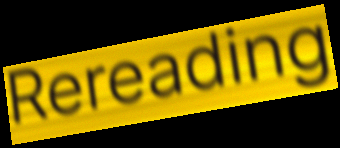
Rereading